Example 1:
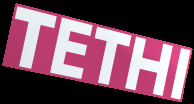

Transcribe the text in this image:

TETHI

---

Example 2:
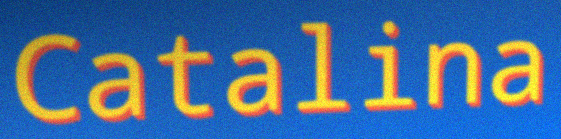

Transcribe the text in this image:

Catalina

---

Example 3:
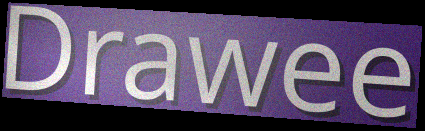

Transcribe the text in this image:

Drawee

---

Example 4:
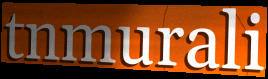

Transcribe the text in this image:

tnmurali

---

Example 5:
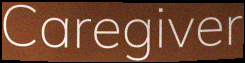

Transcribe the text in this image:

Caregiver